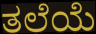
ತಲೆಯೆ